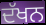
ਦੱਖਨ